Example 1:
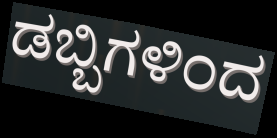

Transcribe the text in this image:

ಡಬ್ಬಿಗಳಿಂದ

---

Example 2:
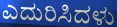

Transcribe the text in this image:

ಎದುರಿಸಿದಳು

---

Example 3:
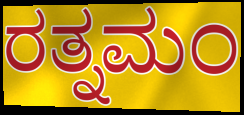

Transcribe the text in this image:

ರತ್ನಮಂ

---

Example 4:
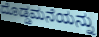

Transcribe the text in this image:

ದೊಡ್ಡಮನೆಯನ್ನು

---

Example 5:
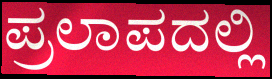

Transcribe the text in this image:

ಪ್ರಲಾಪದಲ್ಲಿ